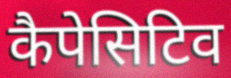
कैपेसिटिव